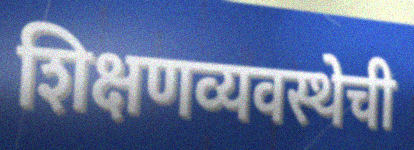
शिक्षणव्यवस्थेची